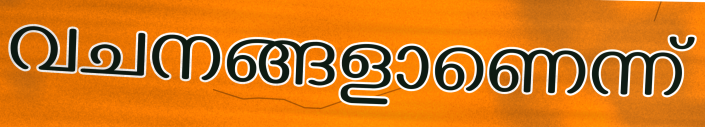
വചനങ്ങളാണെന്ന്